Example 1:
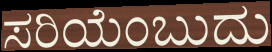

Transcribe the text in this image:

ಸರಿಯೆಂಬುದು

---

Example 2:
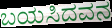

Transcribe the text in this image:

ಬಯಸಿದವನ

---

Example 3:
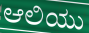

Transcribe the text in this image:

ಆಲಿಯು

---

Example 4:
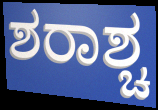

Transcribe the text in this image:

ಶರಾಶ್ಚ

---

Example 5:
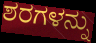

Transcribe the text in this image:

ಶರಗಳನ್ನು